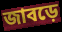
জাবড়ে